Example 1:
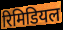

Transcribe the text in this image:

रिमिडियल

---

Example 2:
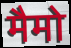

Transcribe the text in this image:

मैमो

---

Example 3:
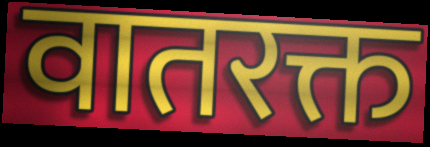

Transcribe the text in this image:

वातरक्त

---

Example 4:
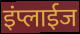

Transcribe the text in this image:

इंप्लाईज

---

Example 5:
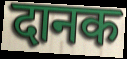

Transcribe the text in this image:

दानक